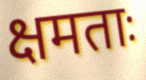
क्षमताः